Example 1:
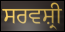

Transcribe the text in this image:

ਸਰਵਸ਼੍ਰੀ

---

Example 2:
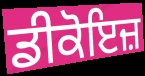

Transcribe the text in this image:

ਡੀਕੋਇਜ਼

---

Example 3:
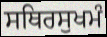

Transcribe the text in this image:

ਸਥਿਰਸੁਖਮੰ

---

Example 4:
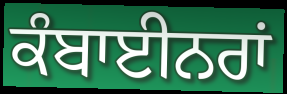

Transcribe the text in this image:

ਕੰਬਾਈਨਰਾਂ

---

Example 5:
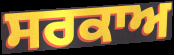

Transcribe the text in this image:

ਸਰਕਾਅ